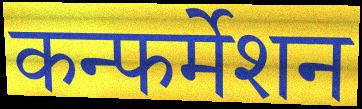
कन्फर्मेशन